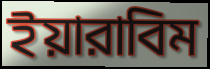
ইয়ারাবিম